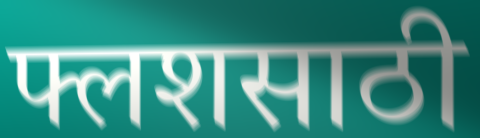
फ्लशसाठी